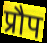
प्रौप